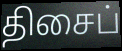
திசைப்